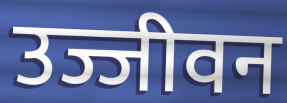
उज्जीवन